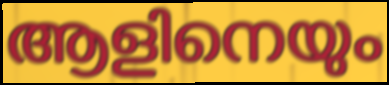
ആളിനെയും